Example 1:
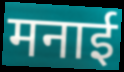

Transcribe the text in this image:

मनाई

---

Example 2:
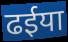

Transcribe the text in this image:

ढईया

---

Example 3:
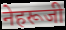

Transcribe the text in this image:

नेहरूजी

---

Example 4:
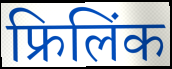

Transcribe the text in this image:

फ्रिलिंक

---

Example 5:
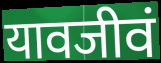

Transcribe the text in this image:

यावजीवं